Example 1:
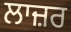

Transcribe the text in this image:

ਲਾਜ਼ਰ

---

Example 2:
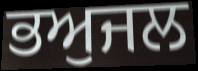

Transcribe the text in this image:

ਭਅੁਜਲ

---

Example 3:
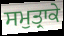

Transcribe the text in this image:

ਸਮੁਤ੍ਰਾਕੇ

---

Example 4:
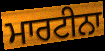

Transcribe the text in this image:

ਮਾਰਟੀਨਾ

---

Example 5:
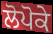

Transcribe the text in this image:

ਲੋਪੋਕੇ